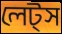
লেট্‌স